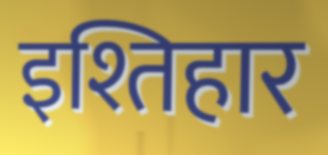
इश्तिहार